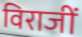
विराजीं